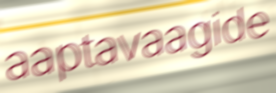
aaptavaagide